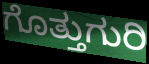
ಗೊತ್ತುಗುರಿ